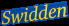
Swidden